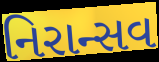
નિરાન્સવ